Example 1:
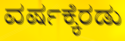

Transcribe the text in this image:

ವರ್ಷಕ್ಕೆರಡು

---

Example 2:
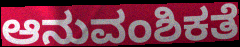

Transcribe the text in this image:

ಆನುವಂಶಿಕತೆ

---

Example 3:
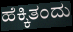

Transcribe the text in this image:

ಹೆಕ್ಕಿತಂದು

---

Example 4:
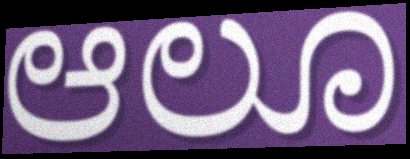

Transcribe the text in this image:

ಆಲೂ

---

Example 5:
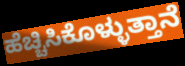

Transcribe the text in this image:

ಹೆಚ್ಚಿಸಿಕೊಳ್ಳುತ್ತಾನೆ